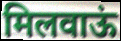
मिलवाऊं